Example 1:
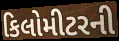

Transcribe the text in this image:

કિલોમીટરની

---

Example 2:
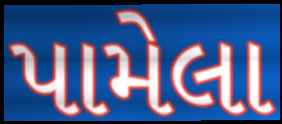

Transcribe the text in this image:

પામેલા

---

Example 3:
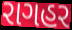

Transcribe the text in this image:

રાગહર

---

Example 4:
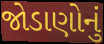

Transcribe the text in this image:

જોડાણોનું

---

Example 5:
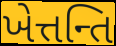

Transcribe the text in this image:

ખેત્તન્તિ